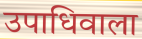
उपाधिवाला